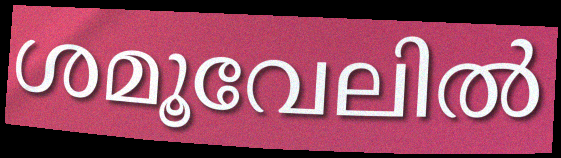
ശമൂവേലിൽ